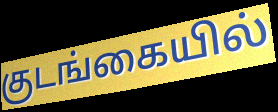
குடங்கையில்